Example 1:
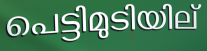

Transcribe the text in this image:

പെട്ടിമുടിയില്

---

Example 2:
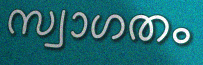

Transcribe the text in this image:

സ്വാഗതം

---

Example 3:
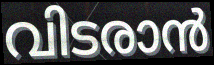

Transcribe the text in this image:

വിടരാൻ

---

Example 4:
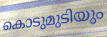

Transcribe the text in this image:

കൊടുമുടിയും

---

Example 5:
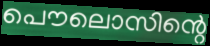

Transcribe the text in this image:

പൌലൊസിന്റെ